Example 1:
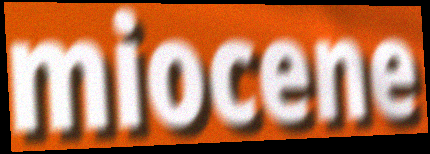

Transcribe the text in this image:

miocene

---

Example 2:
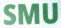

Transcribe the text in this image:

SMU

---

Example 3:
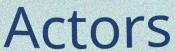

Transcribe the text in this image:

Actors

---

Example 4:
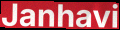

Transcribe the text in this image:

Janhavi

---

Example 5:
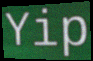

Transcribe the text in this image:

Yip